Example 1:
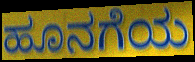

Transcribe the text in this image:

ಹೂನಗೆಯ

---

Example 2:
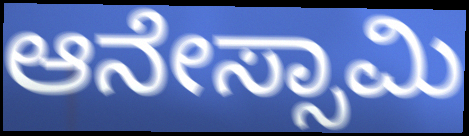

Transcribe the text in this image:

ಆನೇಸ್ಸಾಮಿ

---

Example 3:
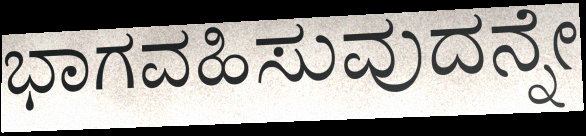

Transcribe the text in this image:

ಭಾಗವಹಿಸುವುದನ್ನೇ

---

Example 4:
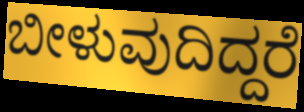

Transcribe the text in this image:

ಬೀಳುವುದಿದ್ದರೆ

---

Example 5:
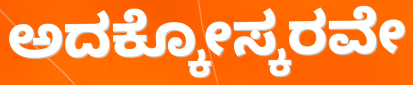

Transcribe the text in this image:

ಅದಕ್ಕೋಸ್ಕರವೇ